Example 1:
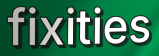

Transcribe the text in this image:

fixities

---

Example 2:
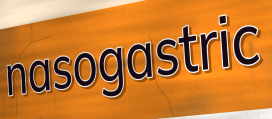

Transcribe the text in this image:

nasogastric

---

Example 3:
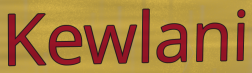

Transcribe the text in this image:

Kewlani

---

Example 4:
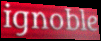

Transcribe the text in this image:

ignoble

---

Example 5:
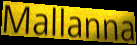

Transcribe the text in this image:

Mallanna